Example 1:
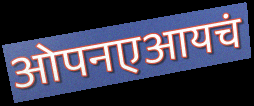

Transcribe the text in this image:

ओपनएआयचं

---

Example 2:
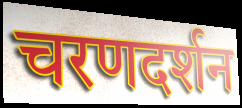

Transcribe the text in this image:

चरणदर्शन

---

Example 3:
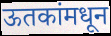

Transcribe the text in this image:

ऊतकांमधून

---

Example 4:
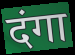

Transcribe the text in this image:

दंगा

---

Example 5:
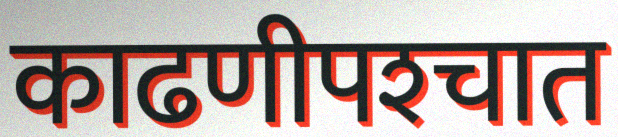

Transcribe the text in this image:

काढणीपश्‍चात